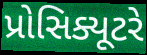
પ્રોસિક્યૂટરે